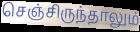
செஞ்சிருந்தாலும்